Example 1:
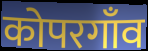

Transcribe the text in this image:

कोपरगाँव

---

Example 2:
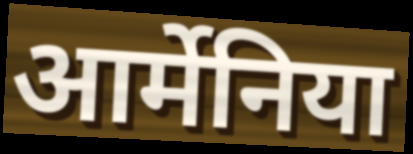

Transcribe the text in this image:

आर्मेनिया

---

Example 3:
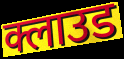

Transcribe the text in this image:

क्लाउड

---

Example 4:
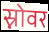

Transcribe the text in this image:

स्नोवर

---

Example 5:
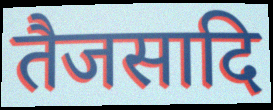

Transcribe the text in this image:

तैजसादि